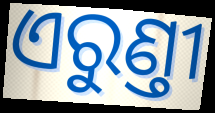
ଏରୁଣ୍ତୀ